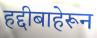
हद्दीबाहेरून